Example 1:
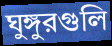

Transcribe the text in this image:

ঘুঙ্গুরগুলি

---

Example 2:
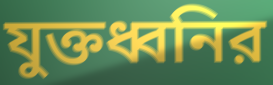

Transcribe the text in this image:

যুক্তধ্বনির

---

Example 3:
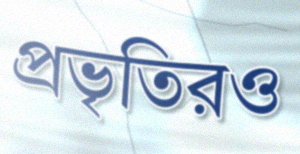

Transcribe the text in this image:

প্রভৃতিরও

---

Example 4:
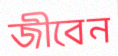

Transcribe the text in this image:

জীবেন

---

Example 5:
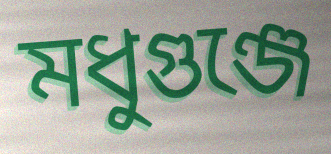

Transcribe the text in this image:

মধুগুঞ্জে